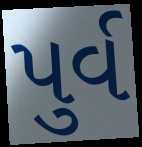
પુર્વ